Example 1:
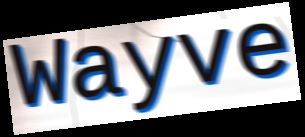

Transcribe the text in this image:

Wayve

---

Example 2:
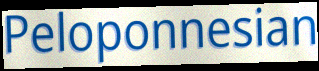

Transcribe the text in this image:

Peloponnesian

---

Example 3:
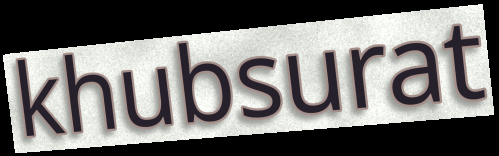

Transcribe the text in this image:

khubsurat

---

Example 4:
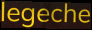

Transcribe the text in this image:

legeche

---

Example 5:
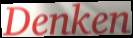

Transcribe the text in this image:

Denken